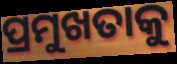
ପ୍ରମୁଖତାକୁ